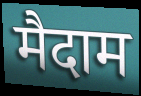
मैदाम